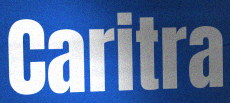
Caritra